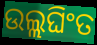
ଉଲ୍ଲଘିଂତ